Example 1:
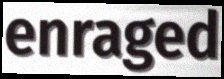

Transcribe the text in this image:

enraged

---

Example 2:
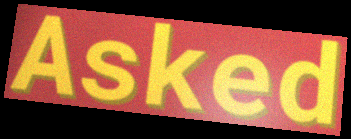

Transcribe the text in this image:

Asked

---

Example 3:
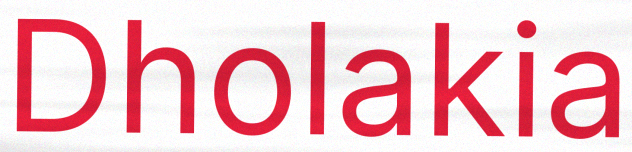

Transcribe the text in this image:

Dholakia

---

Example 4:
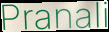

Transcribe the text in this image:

Pranali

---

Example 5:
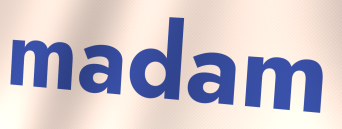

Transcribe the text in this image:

madam